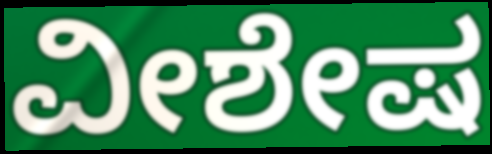
ವೀಶೇಷ